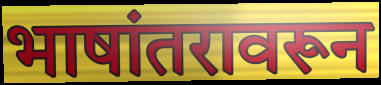
भाषांतरावरून